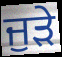
ਜੁੜੇ